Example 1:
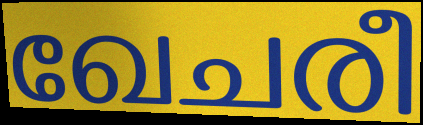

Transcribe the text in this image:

ഖേചരീ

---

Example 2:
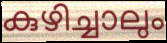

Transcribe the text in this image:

കുഴിച്ചാലും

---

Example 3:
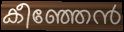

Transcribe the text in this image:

കീഞ്ഞേൻ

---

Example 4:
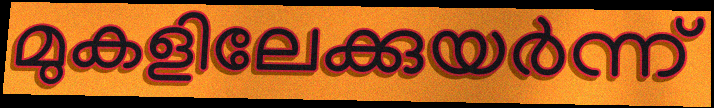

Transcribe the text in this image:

മുകളിലേക്കുയർന്ന്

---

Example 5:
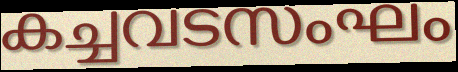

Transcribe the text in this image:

കച്ചവടസംഘം